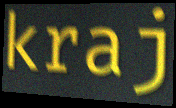
kraj